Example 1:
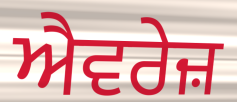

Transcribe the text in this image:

ਐਵਰੇਜ਼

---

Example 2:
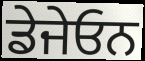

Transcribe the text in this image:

ਡੇਜੇਓਨ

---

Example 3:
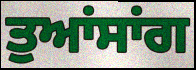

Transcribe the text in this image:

ਤੁਆਂਸਾਂਗ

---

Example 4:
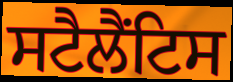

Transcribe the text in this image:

ਸਟੈਲੈਂਟਿਸ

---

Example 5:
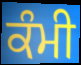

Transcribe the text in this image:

ਕੰਮੀ